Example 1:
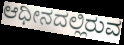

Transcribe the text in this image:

ಆಧೀನದಲ್ಲಿರುವ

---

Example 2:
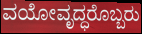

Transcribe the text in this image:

ವಯೋವೃದ್ಧರೊಬ್ಬರು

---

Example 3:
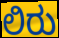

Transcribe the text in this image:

ಲಿರು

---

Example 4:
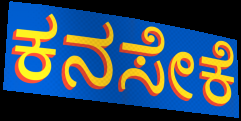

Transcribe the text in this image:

ಕನಸೇಕೆ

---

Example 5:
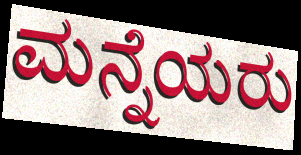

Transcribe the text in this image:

ಮನ್ನೆಯರು